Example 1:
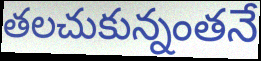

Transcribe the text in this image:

తలచుకున్నంతనే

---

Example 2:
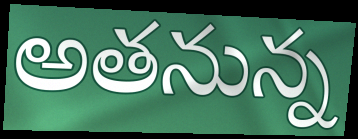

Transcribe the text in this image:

అతనున్న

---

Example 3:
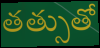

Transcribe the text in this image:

తత్సుతో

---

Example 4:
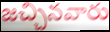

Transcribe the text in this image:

జచ్చినవారు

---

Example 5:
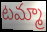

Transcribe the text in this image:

టమ్మా